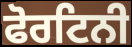
ਫੋਰਟਿਨੀ